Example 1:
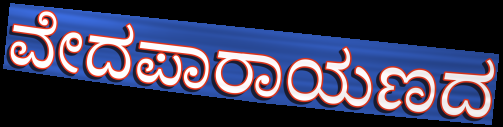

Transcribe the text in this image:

ವೇದಪಾರಾಯಣದ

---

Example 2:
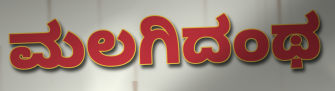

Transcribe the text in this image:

ಮಲಗಿದಂಥ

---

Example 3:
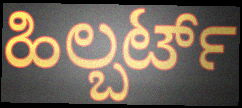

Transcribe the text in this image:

ಹಿಲ್ಬರ್ಟ್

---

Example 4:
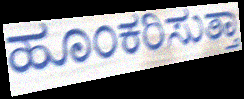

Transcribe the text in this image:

ಹೂಂಕರಿಸುತ್ತಾ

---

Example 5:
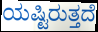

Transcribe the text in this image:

ಯಷ್ಟಿರುತ್ತದೆ